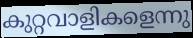
കുറ്റവാളികളെന്നു